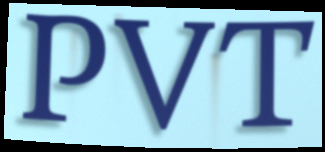
PVT